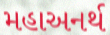
મહાઅનર્થ